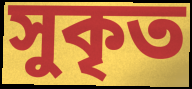
সুকৃত